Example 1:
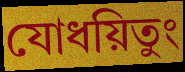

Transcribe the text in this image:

যোধয়িতুং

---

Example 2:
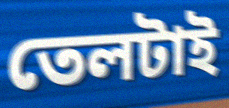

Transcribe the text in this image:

তেলটাই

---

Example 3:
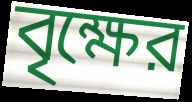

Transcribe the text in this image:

বৃক্ষের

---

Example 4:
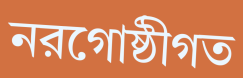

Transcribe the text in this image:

নরগোষ্ঠীগত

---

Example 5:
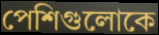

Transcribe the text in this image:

পেশিগুলোকে